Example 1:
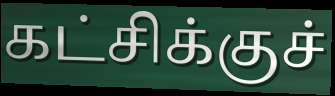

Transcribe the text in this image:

கட்சிக்குச்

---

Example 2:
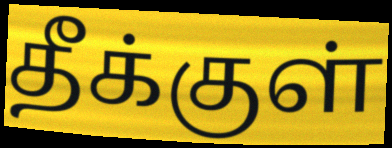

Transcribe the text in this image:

தீக்குள்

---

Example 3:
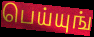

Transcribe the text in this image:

பெய்யுங்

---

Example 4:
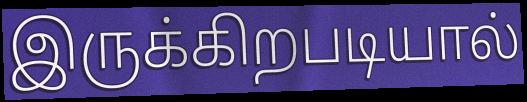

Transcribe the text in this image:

இருக்கிறபடியால்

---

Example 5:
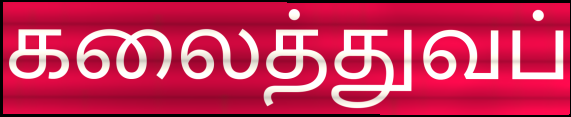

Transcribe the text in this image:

கலைத்துவப்